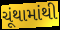
ચૂંથામાંથી